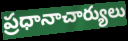
ప్రధానాచార్యులు